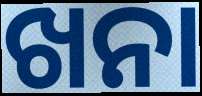
ଖନା